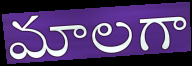
మాలగా